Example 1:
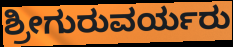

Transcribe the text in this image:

ಶ್ರೀಗುರುವರ್ಯರು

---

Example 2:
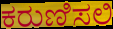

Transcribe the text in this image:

ಕರುಣಿಸಲಿ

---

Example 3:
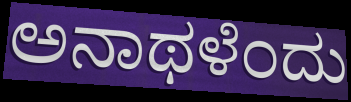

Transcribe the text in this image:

ಅನಾಥಳೆಂದು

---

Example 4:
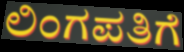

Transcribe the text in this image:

ಲಿಂಗಪತಿಗೆ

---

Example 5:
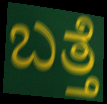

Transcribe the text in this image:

ಬತ್ತೆ